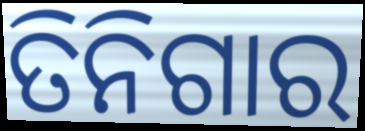
ତିନିଗାର